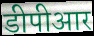
डीपीआर